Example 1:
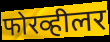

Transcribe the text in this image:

फोरव्हीलर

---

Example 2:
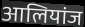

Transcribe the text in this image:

आलियांज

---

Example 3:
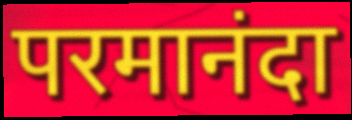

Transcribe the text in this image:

परमानंदा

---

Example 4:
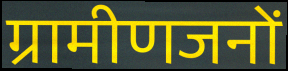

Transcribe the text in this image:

ग्रामीणजनों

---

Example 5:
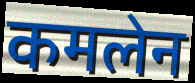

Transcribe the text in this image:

कमलेन